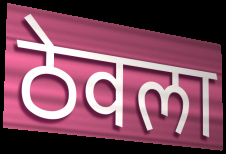
ठेवला